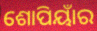
ଶୋପିୟାଁର